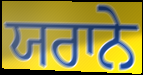
ਯਰਾਨੇ